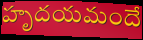
హృదయమందే